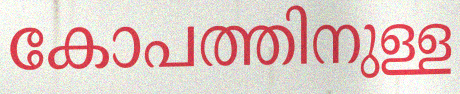
കോപത്തിനുള്ള